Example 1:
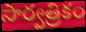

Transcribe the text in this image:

సార్వత్రికం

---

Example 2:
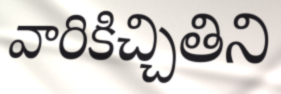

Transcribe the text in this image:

వారికిచ్చితిని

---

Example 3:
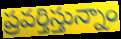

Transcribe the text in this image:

ప్రవర్తిస్తున్నాం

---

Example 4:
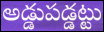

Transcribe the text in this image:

అడ్డుపడ్డట్టు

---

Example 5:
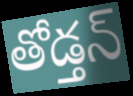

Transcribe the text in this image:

తోడ్తన్